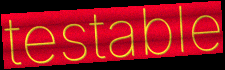
testable